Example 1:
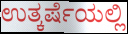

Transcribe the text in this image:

ಉತ್ಕರ್ಷೆಯಲ್ಲಿ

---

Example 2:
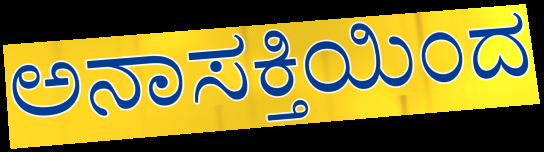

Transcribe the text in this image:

ಅನಾಸಕ್ತಿಯಿಂದ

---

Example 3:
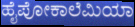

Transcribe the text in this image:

ಹೈಪೋಕಾಲೆಮಿಯಾ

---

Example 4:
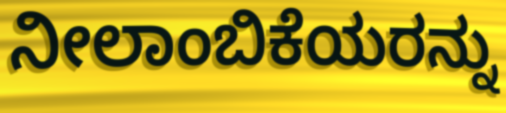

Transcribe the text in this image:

ನೀಲಾಂಬಿಕೆಯರನ್ನು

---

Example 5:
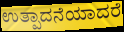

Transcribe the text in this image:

ಉತ್ಪಾದನೆಯಾದರೆ